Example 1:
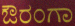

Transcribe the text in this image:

ಔರಂಗಾ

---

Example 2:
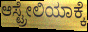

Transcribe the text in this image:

ಆಸ್ಟ್ರೇಲಿಯಾಕ್ಕೆ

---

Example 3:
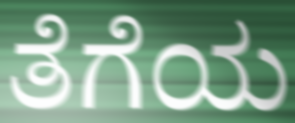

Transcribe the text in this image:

ತೆಗೆಯ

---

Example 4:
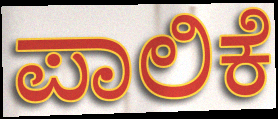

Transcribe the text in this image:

ಪಾಲಿಕೆ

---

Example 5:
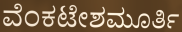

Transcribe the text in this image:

ವೆಂಕಟೇಶಮೂರ್ತಿ